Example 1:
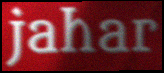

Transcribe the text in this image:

jahar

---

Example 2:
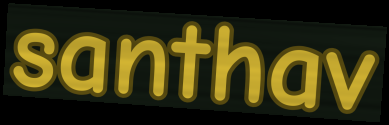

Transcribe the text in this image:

santhav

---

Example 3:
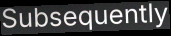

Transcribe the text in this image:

Subsequently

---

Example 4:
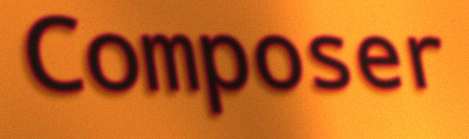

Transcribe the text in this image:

Composer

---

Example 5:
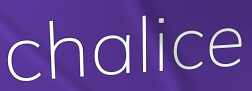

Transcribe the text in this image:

chalice